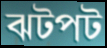
ঝটপট